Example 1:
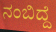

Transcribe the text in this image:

ನಂಬಿದ್ದೆ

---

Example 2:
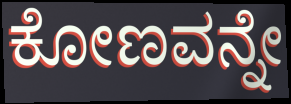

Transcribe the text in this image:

ಕೋಣವನ್ನೇ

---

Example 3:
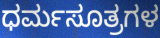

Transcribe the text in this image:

ಧರ್ಮಸೂತ್ರಗಳ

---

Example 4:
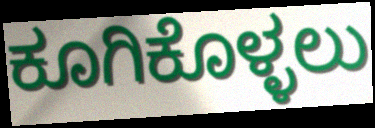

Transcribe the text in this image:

ಕೂಗಿಕೊಳ್ಳಲು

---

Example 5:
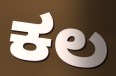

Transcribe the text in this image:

ಕಲ